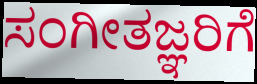
ಸಂಗೀತಜ್ಞರಿಗೆ